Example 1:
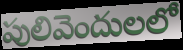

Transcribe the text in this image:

పులివెందులలో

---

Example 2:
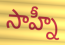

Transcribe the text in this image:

సాహ్నీ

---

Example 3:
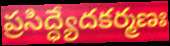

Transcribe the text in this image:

ప్రసిద్ధ్యేదకర్మణః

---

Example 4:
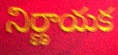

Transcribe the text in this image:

నిర్ణాయక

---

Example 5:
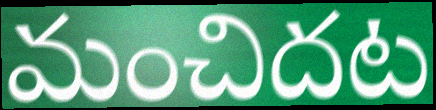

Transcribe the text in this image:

మంచిదట